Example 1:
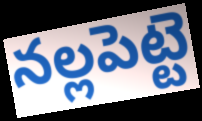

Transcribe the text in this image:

నల్లపెట్టె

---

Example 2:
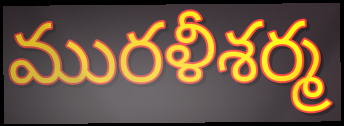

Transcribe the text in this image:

మురళీశర్మ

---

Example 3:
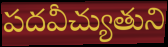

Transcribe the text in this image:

పదవీచ్యుతుని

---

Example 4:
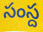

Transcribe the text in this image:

సంస్ద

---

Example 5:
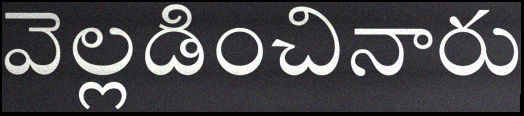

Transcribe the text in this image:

వెల్లడించినారు